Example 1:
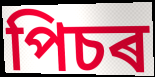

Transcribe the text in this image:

পিচৰ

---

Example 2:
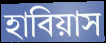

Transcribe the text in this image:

হাবিয়াস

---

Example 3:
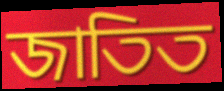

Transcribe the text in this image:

জাতিত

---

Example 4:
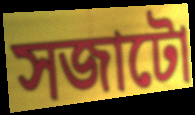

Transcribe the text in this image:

সজাটো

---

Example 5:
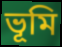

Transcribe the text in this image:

ভূমি